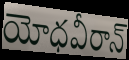
యోధవీరాన్